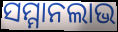
ସମ୍ମାନଲାଭ